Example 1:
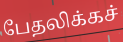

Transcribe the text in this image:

பேதலிக்கச்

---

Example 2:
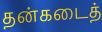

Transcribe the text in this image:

தன்கடைத்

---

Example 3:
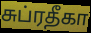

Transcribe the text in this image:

சுப்ரதீகா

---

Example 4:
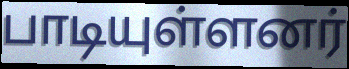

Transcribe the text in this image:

பாடியுள்ளனர்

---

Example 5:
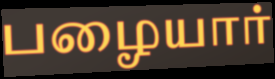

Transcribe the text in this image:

பழையார்